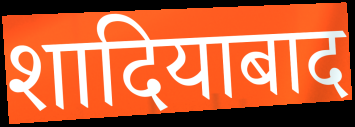
शादियाबाद